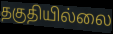
தகுதியில்லை